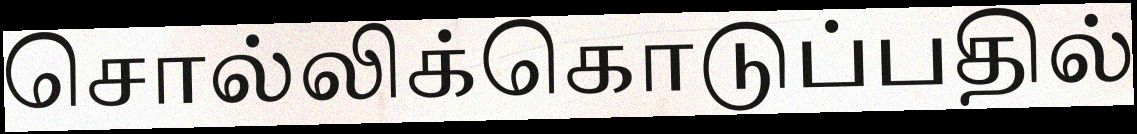
சொல்லிக்கொடுப்பதில்